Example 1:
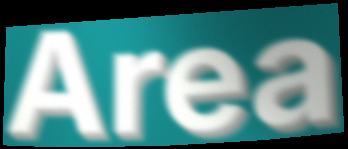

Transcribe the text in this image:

Area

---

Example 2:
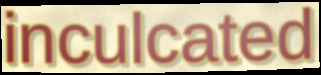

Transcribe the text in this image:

inculcated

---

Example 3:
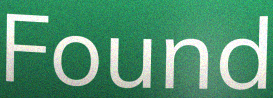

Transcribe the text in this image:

Found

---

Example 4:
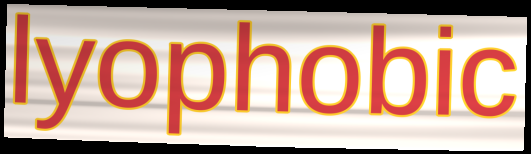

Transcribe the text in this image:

lyophobic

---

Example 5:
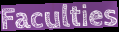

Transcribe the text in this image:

Faculties